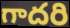
గాదరి